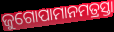
ଜୁଗୋପାମାନମତ୍ରସ୍ତା